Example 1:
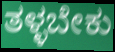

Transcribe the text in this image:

ತಳ್ಳಬೇಕು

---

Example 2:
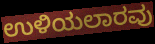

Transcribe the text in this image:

ಉಳಿಯಲಾರವು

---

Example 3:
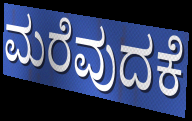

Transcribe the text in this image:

ಮರೆವುದಕೆ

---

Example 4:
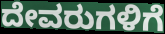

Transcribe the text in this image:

ದೇವರುಗಳಿಗೆ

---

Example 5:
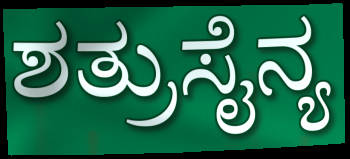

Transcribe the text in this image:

ಶತ್ರುಸೈನ್ಯ